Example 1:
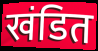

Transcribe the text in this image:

खंडित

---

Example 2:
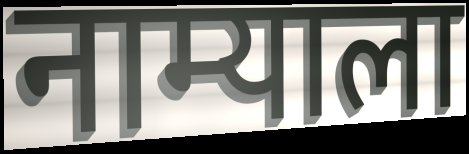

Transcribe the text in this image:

नाम्याला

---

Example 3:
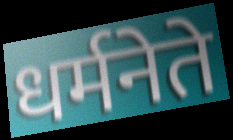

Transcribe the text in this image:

धर्मनेते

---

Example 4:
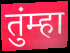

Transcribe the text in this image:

तुंम्हा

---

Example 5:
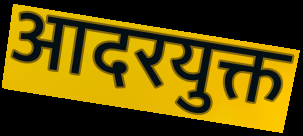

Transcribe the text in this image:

आदरयुक्त